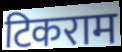
टिकराम